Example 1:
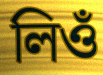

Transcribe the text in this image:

লিওঁ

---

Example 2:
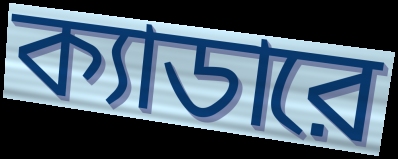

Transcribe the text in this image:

ক্যাডারে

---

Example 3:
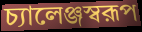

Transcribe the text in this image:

চ্যালেঞ্জস্বরূপ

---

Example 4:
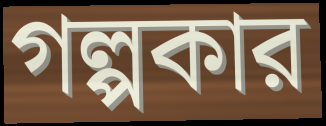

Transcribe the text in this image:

গল্পকার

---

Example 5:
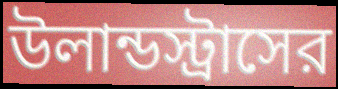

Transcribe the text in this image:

উলান্ডস্ট্রাসের